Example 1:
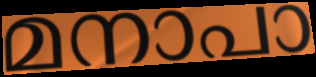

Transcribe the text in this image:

മനാപാ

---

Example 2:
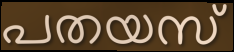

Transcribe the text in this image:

പതയസ്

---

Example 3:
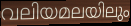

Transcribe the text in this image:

വലിയമലയിലും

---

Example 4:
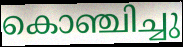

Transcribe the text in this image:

കൊഞ്ചിച്ചു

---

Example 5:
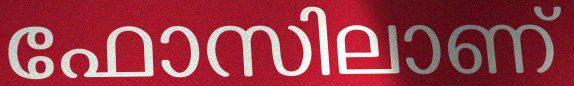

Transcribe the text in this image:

ഫോസിലാണ്